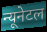
न्यूनेटल